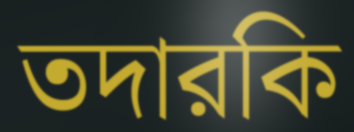
তদারকি